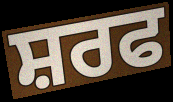
ਸ਼ਰਫ